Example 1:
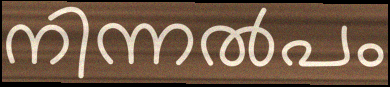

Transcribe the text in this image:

നിന്നൽപം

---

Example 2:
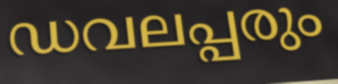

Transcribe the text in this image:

ഡവലപ്പരും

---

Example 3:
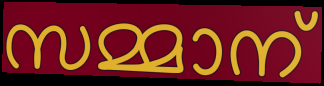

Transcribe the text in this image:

സമ്മാന്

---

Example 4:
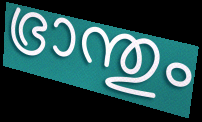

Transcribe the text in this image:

ഭ്രാന്തും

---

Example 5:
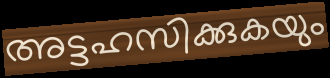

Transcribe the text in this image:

അട്ടഹസിക്കുകയും